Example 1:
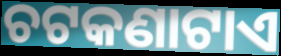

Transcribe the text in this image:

ଚଟକଣାଟାଏ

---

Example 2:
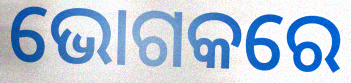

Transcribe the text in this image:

ଭୋଗକରେ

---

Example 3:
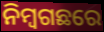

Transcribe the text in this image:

ନିମ୍ବଗଛରେ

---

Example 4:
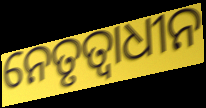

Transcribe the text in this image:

ନେତୃତ୍ୱାଧୀନ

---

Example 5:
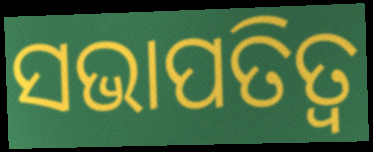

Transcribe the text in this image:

ସଭାପତିତ୍ବ